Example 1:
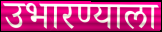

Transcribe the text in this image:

उभारण्याला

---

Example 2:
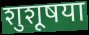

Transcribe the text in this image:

शुश्रूषया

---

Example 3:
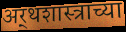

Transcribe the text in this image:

अर्थशास्त्राच्या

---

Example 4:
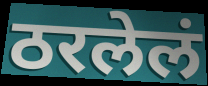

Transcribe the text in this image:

ठरलेलं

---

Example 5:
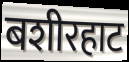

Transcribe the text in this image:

बशीरहाट